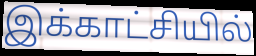
இக்காட்சியில்